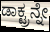
ಡಾಕ್ಟ್ರನ್ನೇ